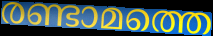
രണ്ടാമത്തെ